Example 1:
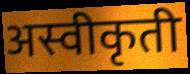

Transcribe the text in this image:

अस्वीकृती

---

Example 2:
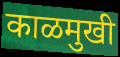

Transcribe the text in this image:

काळमुखी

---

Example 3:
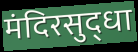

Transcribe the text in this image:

मंदिरसुद्धा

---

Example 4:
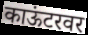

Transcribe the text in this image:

काऊंटरवर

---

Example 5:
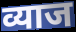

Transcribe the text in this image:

व्याज